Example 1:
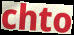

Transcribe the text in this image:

chto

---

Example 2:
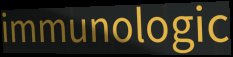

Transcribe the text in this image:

immunologic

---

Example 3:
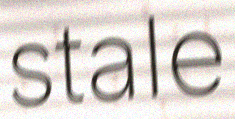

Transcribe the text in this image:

stale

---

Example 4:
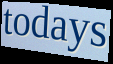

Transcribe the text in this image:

todays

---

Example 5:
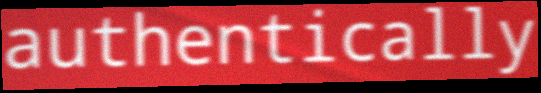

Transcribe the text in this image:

authentically